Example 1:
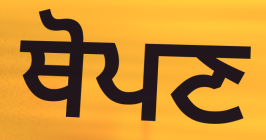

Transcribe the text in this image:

ਥੋਪਣ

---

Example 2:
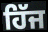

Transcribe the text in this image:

ਹਿੱਜ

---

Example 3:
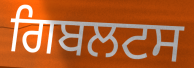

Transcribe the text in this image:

ਗਿਬਲਟਸ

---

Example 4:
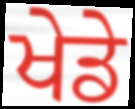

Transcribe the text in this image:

ਖੇਡੇ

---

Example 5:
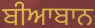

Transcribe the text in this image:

ਬੀਆਬਾਨ